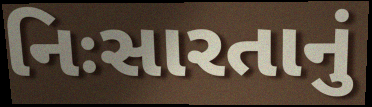
નિઃસારતાનું